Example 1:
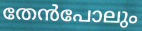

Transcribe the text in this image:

തേൻപോലും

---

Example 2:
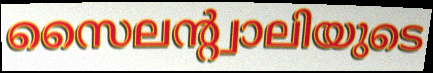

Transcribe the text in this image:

സൈലന്റ്വാലിയുടെ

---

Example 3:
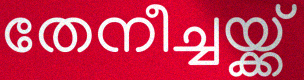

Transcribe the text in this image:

തേനീച്ചയ്ക്ക്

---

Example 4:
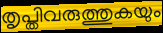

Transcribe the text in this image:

തൃപ്തിവരുത്തുകയും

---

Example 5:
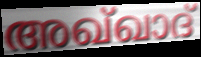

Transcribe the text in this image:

അഖ്ഖാദ്